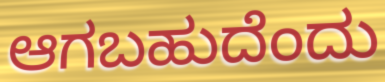
ಆಗಬಹುದೆಂದು